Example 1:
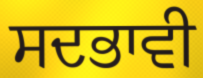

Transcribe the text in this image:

ਸਦਭਾਵੀ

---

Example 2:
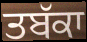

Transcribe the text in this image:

ਤਬੱਕਾ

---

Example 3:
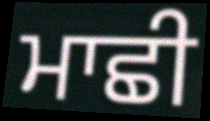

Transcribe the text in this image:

ਮਾਛੀ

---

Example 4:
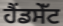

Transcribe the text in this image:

ਹੈਂਡਸੇੱਟ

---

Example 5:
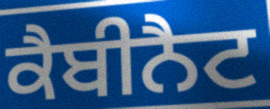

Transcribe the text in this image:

ਕੈਬੀਨੈਟ